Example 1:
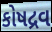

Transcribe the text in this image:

કોષદ્રવ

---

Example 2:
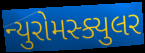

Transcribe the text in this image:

ન્યુરોમસ્ક્યુલર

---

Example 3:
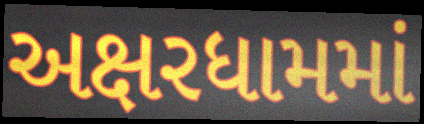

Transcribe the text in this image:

અક્ષરધામમાં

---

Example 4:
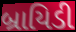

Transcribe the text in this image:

બ્રાયિડી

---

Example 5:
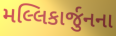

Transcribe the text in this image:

મલ્લિકાર્જુનના